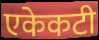
एकेकटी